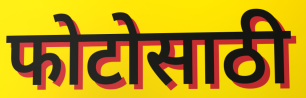
फोटोसाठी